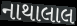
નાથાલાલ